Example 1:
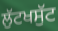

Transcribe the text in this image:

ਲੁੱਟਖਸੁੱਟ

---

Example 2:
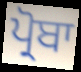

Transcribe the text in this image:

ਪ੍ਰੋਬਾ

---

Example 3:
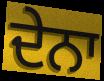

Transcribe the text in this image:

ਦੇਨਾ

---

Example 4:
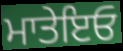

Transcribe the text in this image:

ਮਾਤੇਇਓ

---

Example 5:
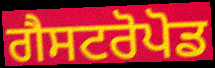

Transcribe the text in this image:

ਗੈਸਟਰੋਪੋਡ